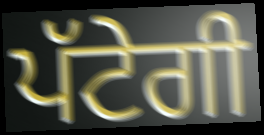
ਪੱਟੇਗੀ